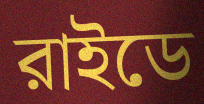
রাইডে